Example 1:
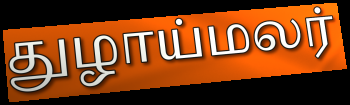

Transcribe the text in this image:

துழாய்மலர்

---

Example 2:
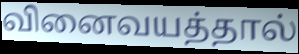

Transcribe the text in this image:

வினைவயத்தால்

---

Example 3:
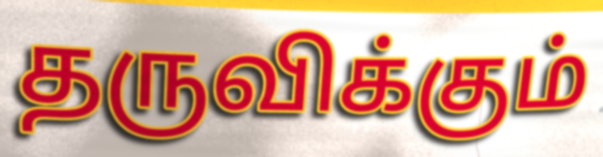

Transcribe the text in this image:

தருவிக்கும்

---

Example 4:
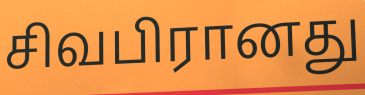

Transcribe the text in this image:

சிவபிரானது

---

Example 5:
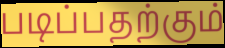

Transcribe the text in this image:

படிப்பதற்கும்